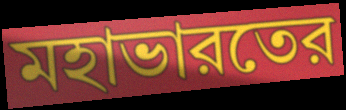
মহাভারতের